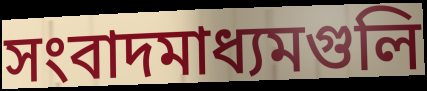
সংবাদমাধ্যমগুলি